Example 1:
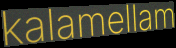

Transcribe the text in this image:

kalamellam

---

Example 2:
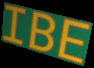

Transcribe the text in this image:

IBE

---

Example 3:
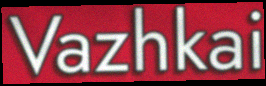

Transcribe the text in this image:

Vazhkai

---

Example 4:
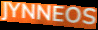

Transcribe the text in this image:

JYNNEOS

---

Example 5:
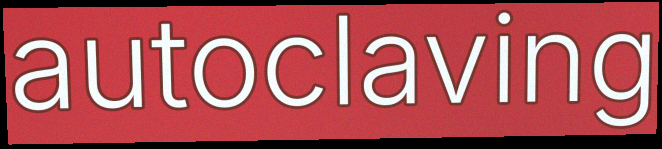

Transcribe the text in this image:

autoclaving